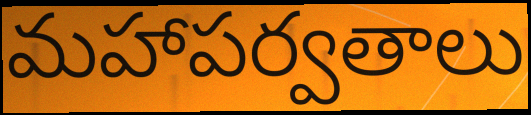
మహాపర్వతాలు